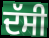
ਦੱਸੀ